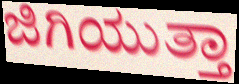
ಜಿಗಿಯುತ್ತಾ